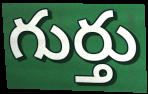
గుర్తు